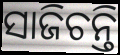
ସାଜିଚନ୍ତି